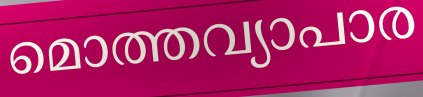
മൊത്തവ്യാപാര